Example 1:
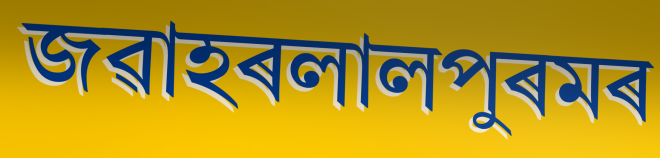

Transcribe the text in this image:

জৱাহৰলালপুৰমৰ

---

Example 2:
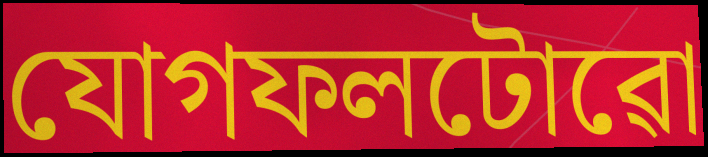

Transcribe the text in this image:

যোগফলটোৱো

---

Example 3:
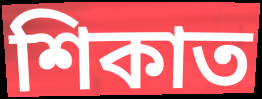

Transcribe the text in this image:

শিকাত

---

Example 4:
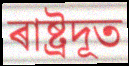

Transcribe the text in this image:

ৰাষ্ট্ৰদূত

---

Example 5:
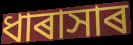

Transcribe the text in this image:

ধাৰাসাৰ